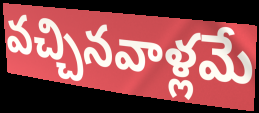
వచ్చినవాళ్లమే